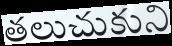
తలుచుకుని